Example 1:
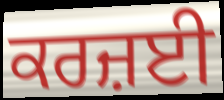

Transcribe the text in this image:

ਕਰਜ਼ਈ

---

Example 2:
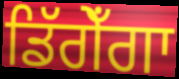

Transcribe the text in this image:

ਡਿੱਗੇਁਗਾ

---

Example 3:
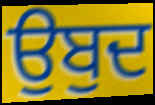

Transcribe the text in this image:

ਉਬੁਦ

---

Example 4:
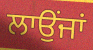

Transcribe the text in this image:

ਲਾਉਂਜਾਂ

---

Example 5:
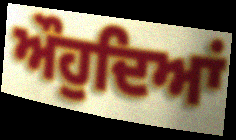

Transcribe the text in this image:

ਔਹੁਦਿਆਂ